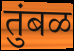
तुंबळ